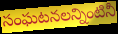
సంఘటనలన్నింటినీ